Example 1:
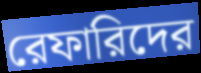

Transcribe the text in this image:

রেফারিদের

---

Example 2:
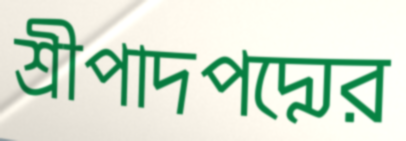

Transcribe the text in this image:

শ্রীপাদপদ্মের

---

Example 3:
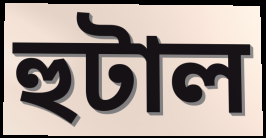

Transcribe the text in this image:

হুটাল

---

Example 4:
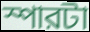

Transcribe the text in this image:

স্পারটা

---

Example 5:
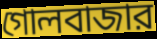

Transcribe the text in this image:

গোলবাজার